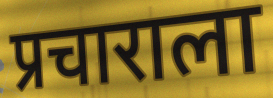
प्रचाराला